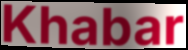
Khabar